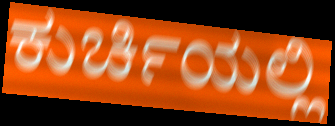
ಕುರ್ಚಿಯಲ್ಲಿ